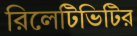
রিলেটিভিটির